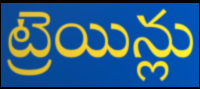
ట్రెయిన్లు